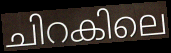
ചിറകിലെ